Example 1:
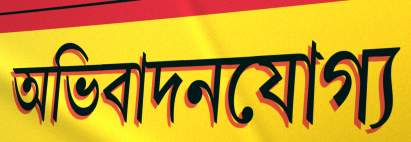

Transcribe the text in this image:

অভিবাদনযোগ্য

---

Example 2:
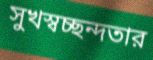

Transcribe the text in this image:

সুখস্বচ্ছন্দতার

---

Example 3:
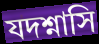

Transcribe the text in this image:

যদশ্নাসি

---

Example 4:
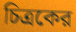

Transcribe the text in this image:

চিত্রকের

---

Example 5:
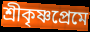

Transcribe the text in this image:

শ্রীকৃষ্ণপ্রেমে